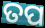
ତପ